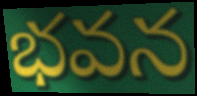
భవన